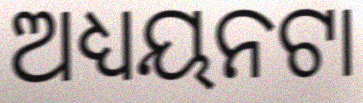
ଅଧ୍ୟୟନଟା